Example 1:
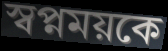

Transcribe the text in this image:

স্বপ্নময়কে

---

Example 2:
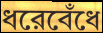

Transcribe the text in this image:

ধরেবেঁধে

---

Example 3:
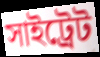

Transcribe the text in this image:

সাইট্রেট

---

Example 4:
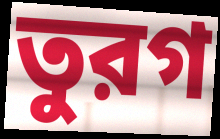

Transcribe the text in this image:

তুরগ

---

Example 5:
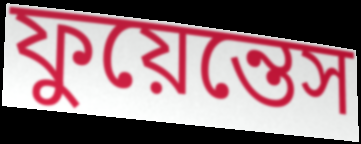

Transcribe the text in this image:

ফুয়েন্তেস